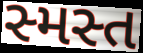
સ્મસ્ત